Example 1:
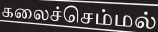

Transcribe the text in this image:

கலைச்செம்மல்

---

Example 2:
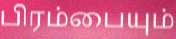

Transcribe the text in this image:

பிரம்பையும்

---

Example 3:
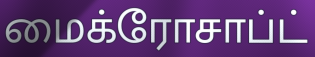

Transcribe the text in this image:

மைக்ரோசாப்ட்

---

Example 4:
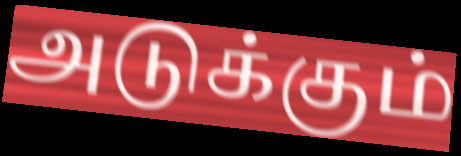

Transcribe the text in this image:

அடுக்கும்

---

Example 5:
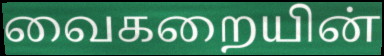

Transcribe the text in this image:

வைகறையின்